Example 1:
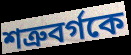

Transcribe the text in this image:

শত্রুবর্গকে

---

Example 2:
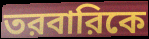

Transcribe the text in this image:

তরবারিকে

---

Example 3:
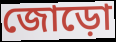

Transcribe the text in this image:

জোড়ো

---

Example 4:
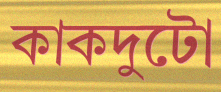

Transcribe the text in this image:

কাকদুটো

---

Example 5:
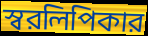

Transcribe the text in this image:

স্বরলিপিকার